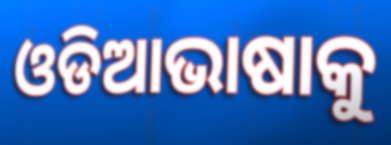
ଓଡିଆଭାଷାକୁ